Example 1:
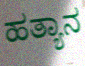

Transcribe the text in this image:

ಹತ್ಯಾನ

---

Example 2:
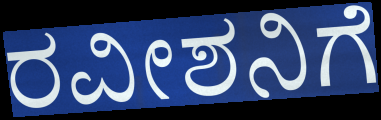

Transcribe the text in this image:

ರವೀಶನಿಗೆ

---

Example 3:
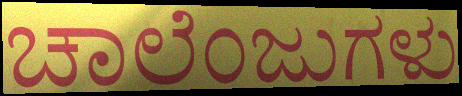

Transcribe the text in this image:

ಚಾಲೆಂಜುಗಳು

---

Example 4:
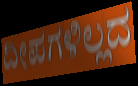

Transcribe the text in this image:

ದೀಪಗಳಿಲ್ಲದ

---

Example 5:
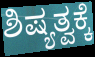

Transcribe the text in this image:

ಶಿಷ್ಯತ್ವಕ್ಕೆ